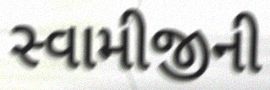
સ્વામીજીની